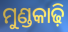
ମୁଣ୍ଡକାଢ଼ି